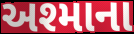
અશ્માના